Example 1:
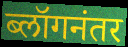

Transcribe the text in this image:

ब्लॉगनंतर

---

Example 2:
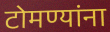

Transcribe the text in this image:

टोमण्यांना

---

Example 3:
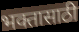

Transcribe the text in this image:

भक्तासाठी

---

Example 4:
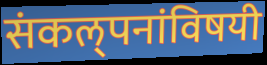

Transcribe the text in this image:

संकल्पनांविषयी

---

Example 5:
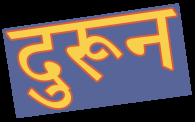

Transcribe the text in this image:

दुरून